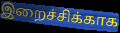
இறைச்சிக்காக